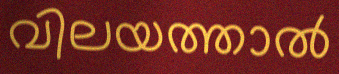
വിലയത്താൽ